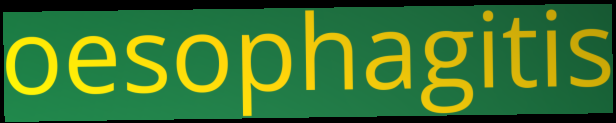
oesophagitis